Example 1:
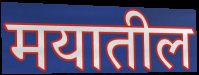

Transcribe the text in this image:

मयातील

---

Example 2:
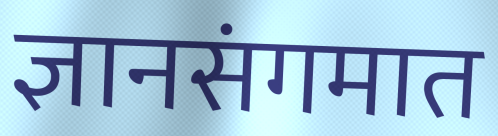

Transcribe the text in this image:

ज्ञानसंगमात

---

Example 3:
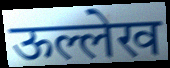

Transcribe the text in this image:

ऊल्लेख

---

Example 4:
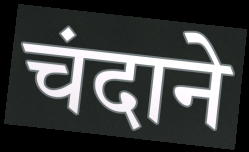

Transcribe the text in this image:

चंदाने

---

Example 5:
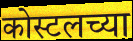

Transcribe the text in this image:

कोस्टलच्या